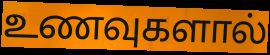
உணவுகளால்